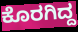
ಕೊರಗಿದ್ದ